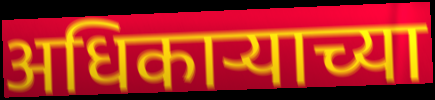
अधिकाऱ्याच्या